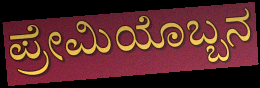
ಪ್ರೇಮಿಯೊಬ್ಬನ